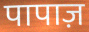
पापाज़